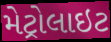
મેટ્રોલાઇટ